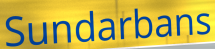
Sundarbans